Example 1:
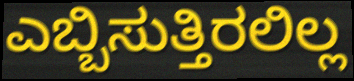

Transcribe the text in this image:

ಎಬ್ಬಿಸುತ್ತಿರಲಿಲ್ಲ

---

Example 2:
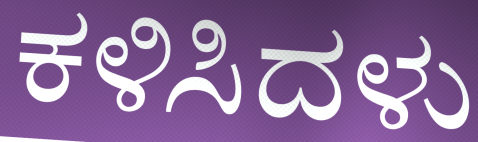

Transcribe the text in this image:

ಕಳಿಸಿದಳು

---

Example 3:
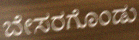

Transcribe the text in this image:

ಬೇಸರಗೊಂಡು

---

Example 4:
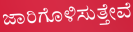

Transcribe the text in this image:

ಜಾರಿಗೊಳಿಸುತ್ತೇವೆ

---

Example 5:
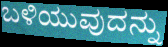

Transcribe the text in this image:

ಬಳಿಯುವುದನ್ನು